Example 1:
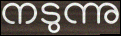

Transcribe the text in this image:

നടുന്നു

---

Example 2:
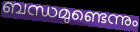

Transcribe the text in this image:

ബന്ധമുണ്ടെന്നും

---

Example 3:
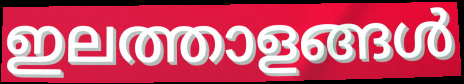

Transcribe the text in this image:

ഇലത്താളങ്ങൾ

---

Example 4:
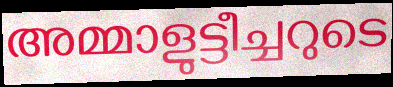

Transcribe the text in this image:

അമ്മാളുട്ടീച്ചറുടെ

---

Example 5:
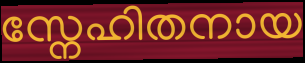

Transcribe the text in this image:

സ്നേഹിതനായ